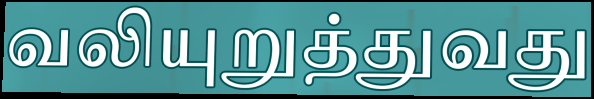
வலியுறுத்துவது